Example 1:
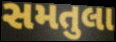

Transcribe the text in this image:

સમતુલા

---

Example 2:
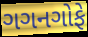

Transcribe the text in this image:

ગગનગોફે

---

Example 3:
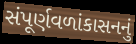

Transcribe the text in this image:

સંપૂર્ણવળાંકાસનનું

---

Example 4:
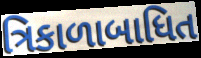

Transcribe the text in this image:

ત્રિકાળાબાધિત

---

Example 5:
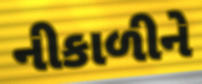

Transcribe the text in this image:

નીકાળીને